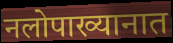
नलोपाख्यानात